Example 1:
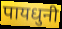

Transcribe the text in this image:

पायधुनी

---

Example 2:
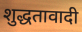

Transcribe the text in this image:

शुद्धतावादी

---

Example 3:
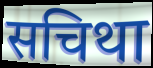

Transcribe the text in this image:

सचिथा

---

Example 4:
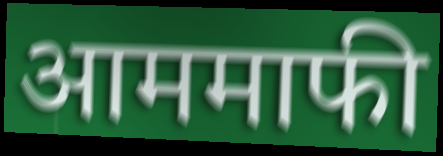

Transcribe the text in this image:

आममाफी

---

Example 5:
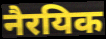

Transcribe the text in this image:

नैरयिक